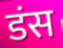
डंस